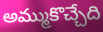
అమ్ముకొచ్చేది